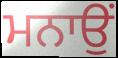
ਮਨਾਉਂ